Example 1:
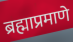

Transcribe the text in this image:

ब्रह्माप्रमाणे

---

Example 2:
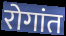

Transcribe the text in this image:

रोगांत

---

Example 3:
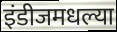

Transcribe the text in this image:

इंडीजमधल्या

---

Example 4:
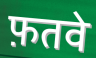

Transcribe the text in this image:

फ़तवे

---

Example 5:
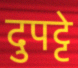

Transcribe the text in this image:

दुपट्टे